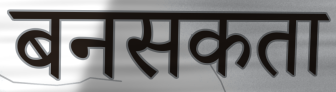
बनसकता